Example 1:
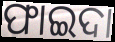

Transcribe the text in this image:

ଫାଇଦା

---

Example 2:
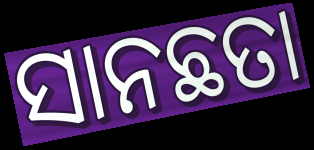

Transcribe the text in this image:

ସାନଛତା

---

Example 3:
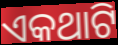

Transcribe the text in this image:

ଏକଥାଟି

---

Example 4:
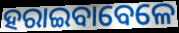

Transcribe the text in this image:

ହରାଇବାବେଳେ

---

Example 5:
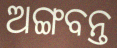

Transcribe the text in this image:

ଅଙ୍ଗବନ୍ତ